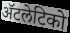
ॲटलेटिको